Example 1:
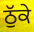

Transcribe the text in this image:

ਠੁੱਕੇ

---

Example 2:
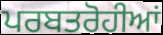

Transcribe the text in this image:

ਪਰਬਤਰੋਹੀਆਂ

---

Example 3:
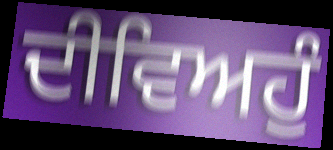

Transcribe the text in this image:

ਦੀਵਿਅਹੁੰ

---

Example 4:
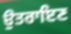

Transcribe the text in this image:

ਉਤਰਾਇਣ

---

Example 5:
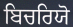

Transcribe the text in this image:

ਬਿਚਰਿਯੋ